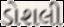
ડોશલી